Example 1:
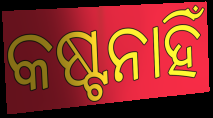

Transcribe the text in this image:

କଷ୍ଟନାହିଁ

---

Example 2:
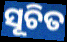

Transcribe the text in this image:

ସୂଚିତ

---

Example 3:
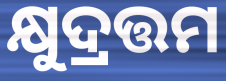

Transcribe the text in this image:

କ୍ଷୁଦ୍ରତ୍ତମ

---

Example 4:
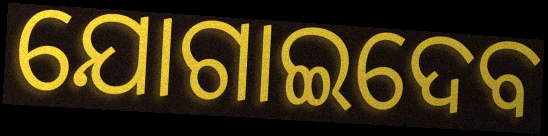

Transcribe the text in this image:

ଯୋଗାଇଦେବ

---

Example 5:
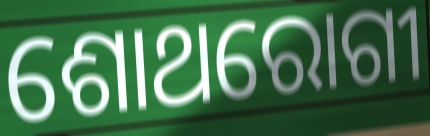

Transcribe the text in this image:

ଶୋଥରୋଗୀ